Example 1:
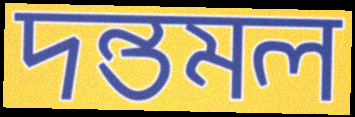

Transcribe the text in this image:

দন্তমল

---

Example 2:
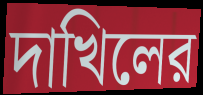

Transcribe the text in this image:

দাখিলের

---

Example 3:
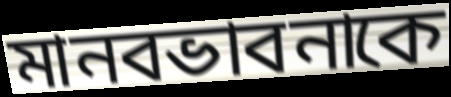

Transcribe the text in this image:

মানবভাবনাকে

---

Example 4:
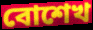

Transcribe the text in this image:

বোশেখ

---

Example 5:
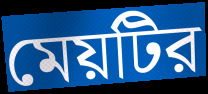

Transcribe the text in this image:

মেয়টির